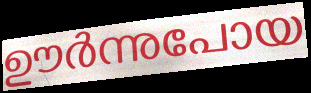
ഊർന്നുപോയ